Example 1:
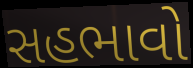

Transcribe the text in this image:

સહભાવો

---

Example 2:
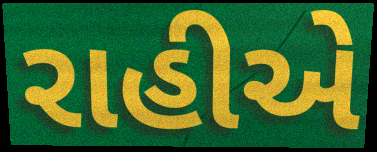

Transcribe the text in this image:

રાહીએ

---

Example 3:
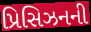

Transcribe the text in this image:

પ્રિસિઝનની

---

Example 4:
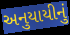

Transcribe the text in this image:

અનુયાયીનું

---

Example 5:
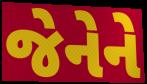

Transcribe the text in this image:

જેનેને